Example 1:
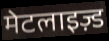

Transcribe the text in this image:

मेटलाइज़्ड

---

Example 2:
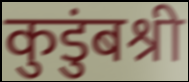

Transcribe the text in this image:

कुडुंबश्री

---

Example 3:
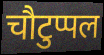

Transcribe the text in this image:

चौटुप्पल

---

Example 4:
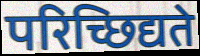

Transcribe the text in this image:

परिच्छिद्यते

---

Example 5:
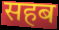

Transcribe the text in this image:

सहब